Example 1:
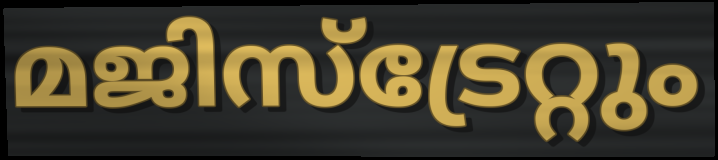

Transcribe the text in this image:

മജിസ്ട്രേറ്റും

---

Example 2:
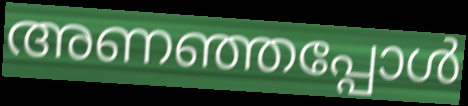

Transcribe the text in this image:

അണഞ്ഞപ്പോൾ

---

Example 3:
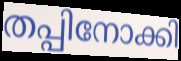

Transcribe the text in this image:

തപ്പിനോക്കി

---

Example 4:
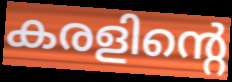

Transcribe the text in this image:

കരളിന്റെ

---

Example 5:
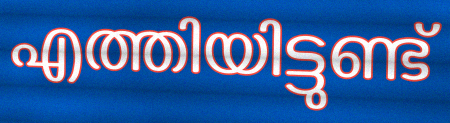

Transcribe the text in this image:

എത്തിയിട്ടുണ്ട്